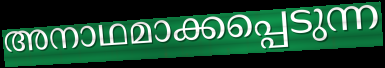
അനാഥമാക്കപ്പെടുന്ന